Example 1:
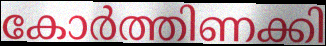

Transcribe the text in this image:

കോർത്തിണക്കി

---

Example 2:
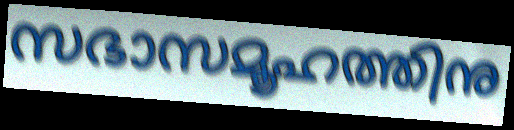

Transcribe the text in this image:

സഭാസമൂഹത്തിനു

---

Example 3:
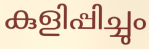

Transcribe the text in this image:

കുളിപ്പിച്ചും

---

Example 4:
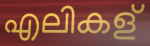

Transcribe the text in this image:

എലികള്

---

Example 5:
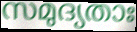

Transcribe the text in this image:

സമുദ്യതാഃ